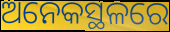
ଅନେକସ୍ଥଳରେ